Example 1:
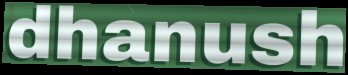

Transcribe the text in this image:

dhanush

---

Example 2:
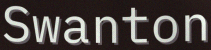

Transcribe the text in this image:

Swanton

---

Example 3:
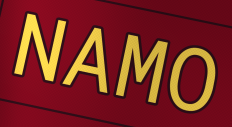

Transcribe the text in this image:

NAMO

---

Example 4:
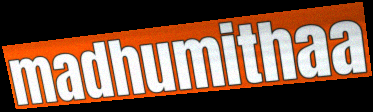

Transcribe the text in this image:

madhumithaa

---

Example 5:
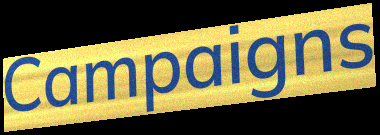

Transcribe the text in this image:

Campaigns